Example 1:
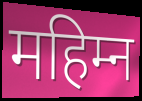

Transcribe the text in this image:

महिम्न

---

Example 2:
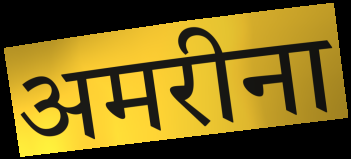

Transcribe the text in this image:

अमरीना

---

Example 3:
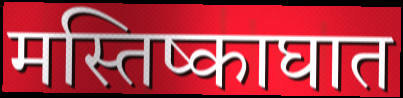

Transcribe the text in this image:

मस्तिष्काघात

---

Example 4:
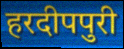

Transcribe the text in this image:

हरदीपपुरी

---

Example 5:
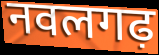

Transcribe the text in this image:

नवलगढ़